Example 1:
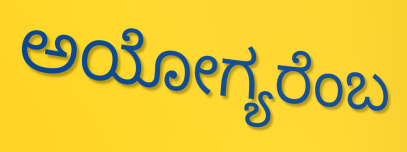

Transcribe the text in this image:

ಅಯೋಗ್ಯರೆಂಬ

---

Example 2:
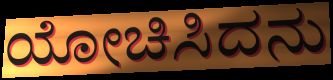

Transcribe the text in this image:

ಯೋಚಿಸಿದನು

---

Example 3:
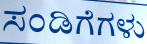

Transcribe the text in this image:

ಸಂಡಿಗೆಗಳು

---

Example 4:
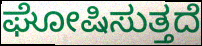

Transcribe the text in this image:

ಘೋಷಿಸುತ್ತದೆ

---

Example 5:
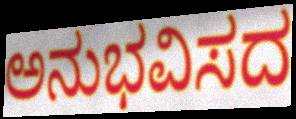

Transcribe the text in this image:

ಅನುಭವಿಸದ